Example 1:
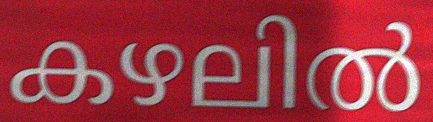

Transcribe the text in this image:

കഴലിൽ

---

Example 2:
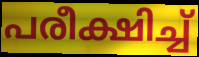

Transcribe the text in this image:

പരീക്ഷിച്ച്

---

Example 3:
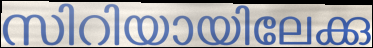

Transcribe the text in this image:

സിറിയായിലേക്കു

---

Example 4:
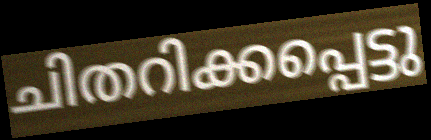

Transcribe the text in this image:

ചിതറിക്കപ്പെട്ടു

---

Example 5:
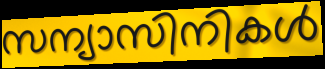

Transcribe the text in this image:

സന്യാസിനികൾ